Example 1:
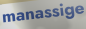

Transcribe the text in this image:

manassige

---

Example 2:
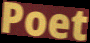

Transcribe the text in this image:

Poet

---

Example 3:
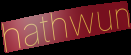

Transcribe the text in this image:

hathwun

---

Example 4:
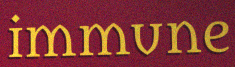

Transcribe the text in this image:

immune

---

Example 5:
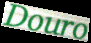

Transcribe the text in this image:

Douro